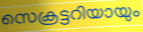
സെക്രട്ടറിയായും